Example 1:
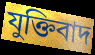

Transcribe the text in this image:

যুক্তিবাদ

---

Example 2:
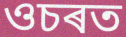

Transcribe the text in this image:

ওচৰত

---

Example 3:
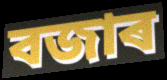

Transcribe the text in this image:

বজাৰ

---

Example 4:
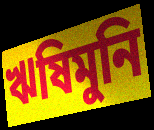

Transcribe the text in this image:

ঋষিমুনি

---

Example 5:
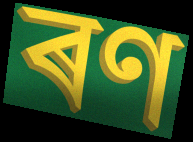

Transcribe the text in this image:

ৰণ